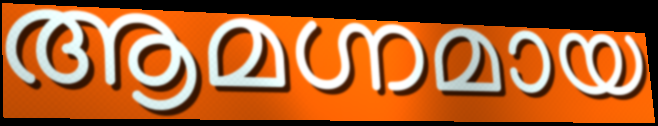
ആമഗ്നമായ